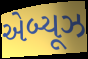
એબ્યૂઝ